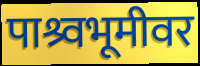
पाश्र्वभूमीवर